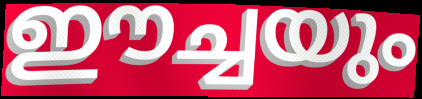
ഈച്ചയും